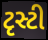
ટૃસ્ટી